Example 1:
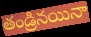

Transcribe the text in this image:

తండ్రినయినా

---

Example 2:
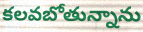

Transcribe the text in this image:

కలవబోతున్నాను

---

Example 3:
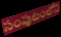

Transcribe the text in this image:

సంపుటంలోని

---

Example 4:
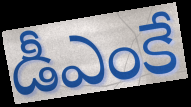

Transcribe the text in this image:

డీఎంకే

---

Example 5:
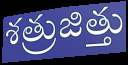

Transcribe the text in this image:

శత్రుజిత్తు